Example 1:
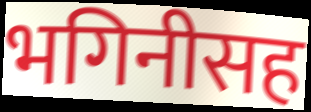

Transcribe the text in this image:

भगिनीसह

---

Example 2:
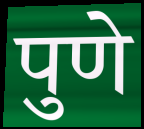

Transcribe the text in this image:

पुणे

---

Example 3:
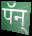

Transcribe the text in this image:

पॅन्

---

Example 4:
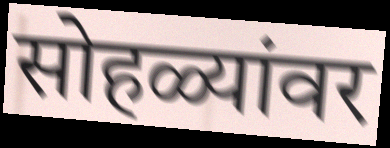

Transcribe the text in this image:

सोहळ्यांवर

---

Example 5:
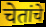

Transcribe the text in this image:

चेतांचे